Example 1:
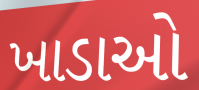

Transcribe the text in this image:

ખાડાઓ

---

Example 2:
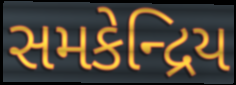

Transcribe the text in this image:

સમકેન્દ્રિય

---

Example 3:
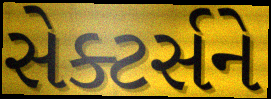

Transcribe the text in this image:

સેક્ટર્સને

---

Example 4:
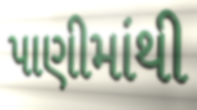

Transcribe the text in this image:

પાણીમાંથી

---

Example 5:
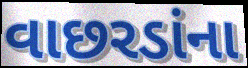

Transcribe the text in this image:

વાછરડાંના